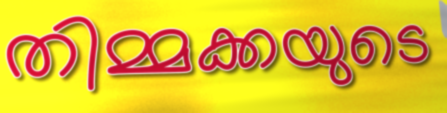
തിമ്മക്കയുടെ